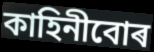
কাহিনীবোৰ